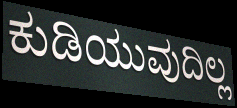
ಕುಡಿಯುವುದಿಲ್ಲ